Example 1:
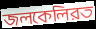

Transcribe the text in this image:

জলকেলিরত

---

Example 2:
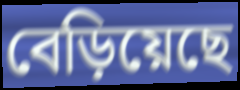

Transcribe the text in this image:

বেড়িয়েছে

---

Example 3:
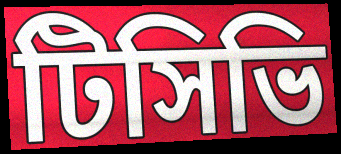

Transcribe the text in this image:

টিসিভি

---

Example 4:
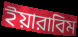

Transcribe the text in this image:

ইয়ারাবিম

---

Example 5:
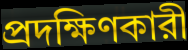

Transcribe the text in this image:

প্রদক্ষিণকারী